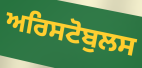
ਅਰਿਸਟੋਬੁਲਸ